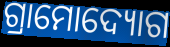
ଗ୍ରାମୋଦ୍ୟୋଗ